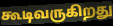
கூடிவருகிறது